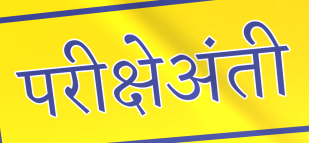
परीक्षेअंती